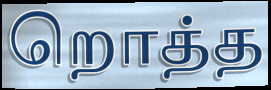
றொத்த